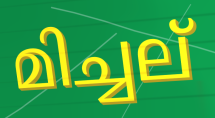
മിച്ചല്